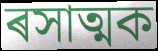
ৰসাত্মক